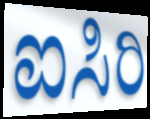
ಐಸಿರಿ